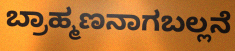
ಬ್ರಾಹ್ಮಣನಾಗಬಲ್ಲನೆ